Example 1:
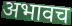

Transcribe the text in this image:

अभावच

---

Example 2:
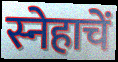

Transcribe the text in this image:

स्नेहाचें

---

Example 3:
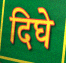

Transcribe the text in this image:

दिघे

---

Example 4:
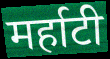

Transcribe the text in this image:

मर्हाटी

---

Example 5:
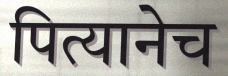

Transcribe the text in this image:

पित्यानेच